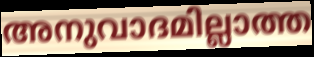
അനുവാദമില്ലാത്ത